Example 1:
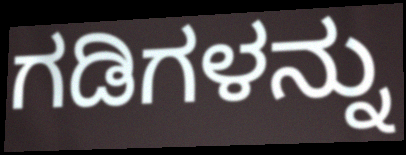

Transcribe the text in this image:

ಗಡಿಗಳನ್ನು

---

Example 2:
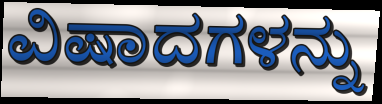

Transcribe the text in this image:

ವಿಷಾದಗಳನ್ನು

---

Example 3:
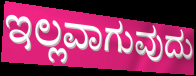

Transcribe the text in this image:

ಇಲ್ಲವಾಗುವುದು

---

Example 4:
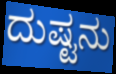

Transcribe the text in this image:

ದುಷ್ಟನು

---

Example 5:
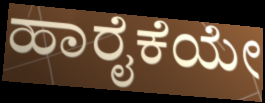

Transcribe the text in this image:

ಹಾರೈಕೆಯೇ